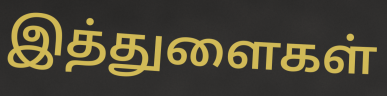
இத்துளைகள்